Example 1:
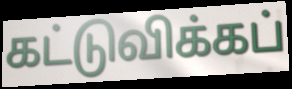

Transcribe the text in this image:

கட்டுவிக்கப்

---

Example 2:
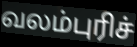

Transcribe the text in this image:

வலம்புரிச்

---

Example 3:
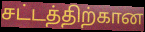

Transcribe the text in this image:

சட்டத்திற்கான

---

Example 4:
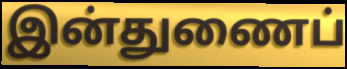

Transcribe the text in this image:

இன்துணைப்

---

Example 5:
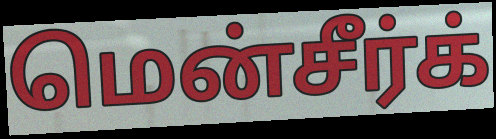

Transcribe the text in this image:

மென்சீர்க்